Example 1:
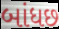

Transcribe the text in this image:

બાંધછ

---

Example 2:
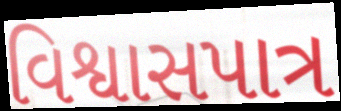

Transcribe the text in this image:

વિશ્વાસપાત્ર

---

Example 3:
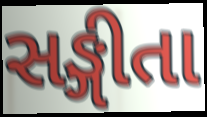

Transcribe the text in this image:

સઙ્ગીતા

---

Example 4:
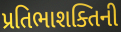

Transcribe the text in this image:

પ્રતિભાશક્તિની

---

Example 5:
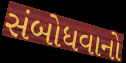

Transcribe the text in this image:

સંબોધવાનો